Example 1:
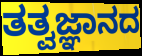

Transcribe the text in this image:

ತತ್ವಜ್ಞಾನದ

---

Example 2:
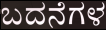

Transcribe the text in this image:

ಬದನೆಗಳ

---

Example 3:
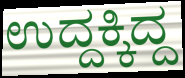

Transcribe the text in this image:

ಉದ್ದಕ್ಕಿದ್ದ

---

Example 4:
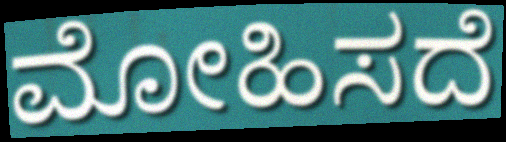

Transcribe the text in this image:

ಮೋಹಿಸದೆ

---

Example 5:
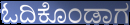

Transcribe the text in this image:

ಓದಿಕೊಂಡಾಗ